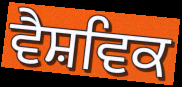
ਵੈਸ਼ਵਿਕ